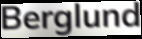
Berglund